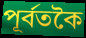
পূৰ্বতকৈ